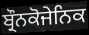
ਬ੍ਰੌਨਕੋਜੇਨਿਕ